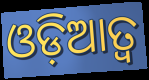
ଓଡ଼ିଆତ୍ୱ